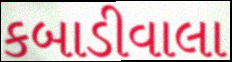
કબાડીવાલા